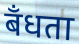
बँधता